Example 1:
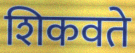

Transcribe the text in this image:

शिकवते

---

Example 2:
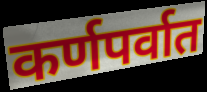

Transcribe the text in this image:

कर्णपर्वात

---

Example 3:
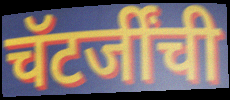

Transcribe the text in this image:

चॅटर्जींची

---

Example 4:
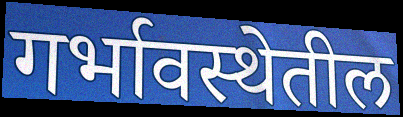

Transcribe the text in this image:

गर्भावस्थेतील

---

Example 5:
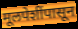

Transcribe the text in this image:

मूलपेशींपासून